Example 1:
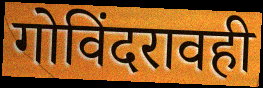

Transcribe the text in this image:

गोविंदरावही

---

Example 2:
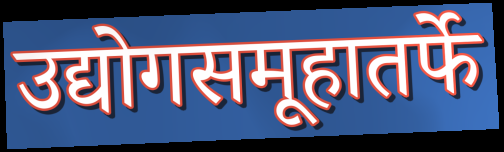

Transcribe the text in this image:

उद्योगसमूहातर्फे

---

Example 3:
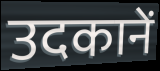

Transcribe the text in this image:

उदकानें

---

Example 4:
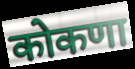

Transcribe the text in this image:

कोकणा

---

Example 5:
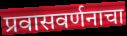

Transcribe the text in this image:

प्रवासवर्णनाचा